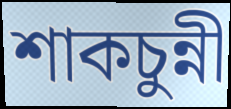
শাকচুন্নী